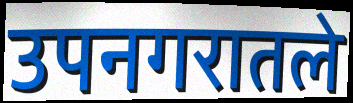
उपनगरातले